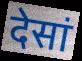
देसां